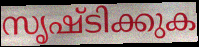
സൃഷ്ടിക്കുക